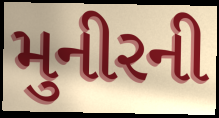
મુનીરની